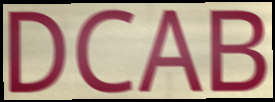
DCAB